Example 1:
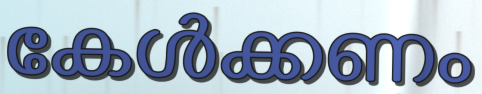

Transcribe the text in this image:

കേൾക്കണം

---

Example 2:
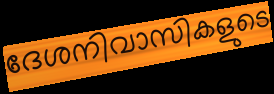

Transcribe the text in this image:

ദേശനിവാസികളുടെ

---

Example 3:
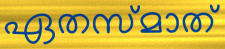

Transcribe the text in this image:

ഏതസ്മാത്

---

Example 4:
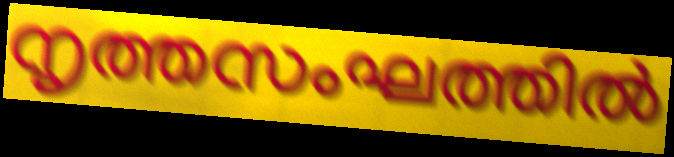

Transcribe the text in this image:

നൃത്തസംഘത്തിൽ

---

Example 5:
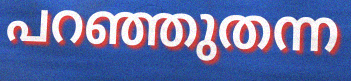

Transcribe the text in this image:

പറഞ്ഞുതന്ന